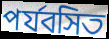
পৰ্যবসিত